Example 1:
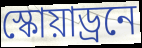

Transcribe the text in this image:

স্কোয়াড্রনে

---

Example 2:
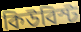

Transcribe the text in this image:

কিউবিস্ট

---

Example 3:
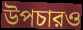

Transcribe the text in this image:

উপচারও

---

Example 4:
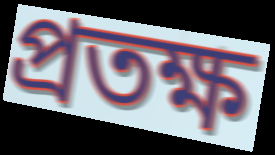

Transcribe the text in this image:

প্রতক্ষ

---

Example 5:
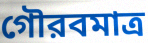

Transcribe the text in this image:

গৌরবমাত্র